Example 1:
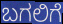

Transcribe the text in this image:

ಬಗಲಿಗೆ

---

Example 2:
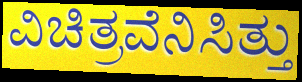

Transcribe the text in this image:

ವಿಚಿತ್ರವೆನಿಸಿತ್ತು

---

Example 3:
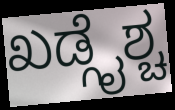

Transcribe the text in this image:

ಖಡ್ಗೈಶ್ಚ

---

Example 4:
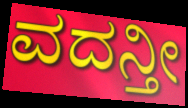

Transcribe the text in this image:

ವದನ್ತೀ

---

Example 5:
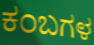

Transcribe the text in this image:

ಕಂಬಗಳ